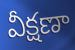
వీక్షణా